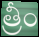
త్రీం